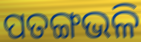
ପତଙ୍ଗଭଳି